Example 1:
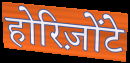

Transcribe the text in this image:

होरिज़ोंटे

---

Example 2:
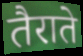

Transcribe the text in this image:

तैराते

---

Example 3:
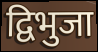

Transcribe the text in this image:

द्विभुजा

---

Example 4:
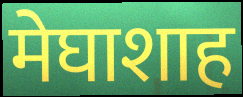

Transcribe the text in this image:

मेघाशाह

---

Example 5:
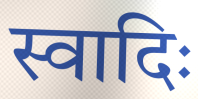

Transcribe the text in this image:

स्वादिः